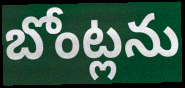
బోంట్లను